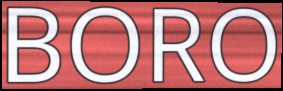
BORO